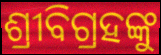
ଶ୍ରୀବିଗ୍ରହଙ୍କୁ